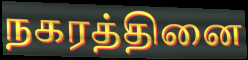
நகரத்தினை